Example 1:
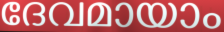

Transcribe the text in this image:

ദേവമായാം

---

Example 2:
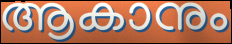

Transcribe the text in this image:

ആകാനും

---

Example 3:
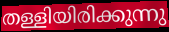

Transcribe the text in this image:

തള്ളിയിരിക്കുന്നു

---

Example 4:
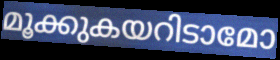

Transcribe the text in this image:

മൂക്കുകയറിടാമോ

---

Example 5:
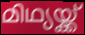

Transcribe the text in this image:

മിഥ്യയ്ക്ക്